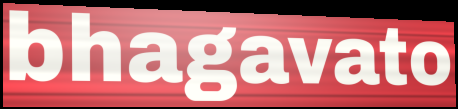
bhagavato